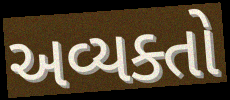
અવ્યક્તો